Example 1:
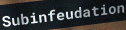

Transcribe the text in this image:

Subinfeudation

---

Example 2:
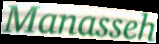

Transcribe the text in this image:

Manasseh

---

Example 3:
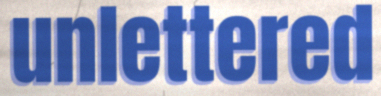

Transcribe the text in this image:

unlettered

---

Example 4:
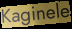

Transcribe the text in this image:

Kaginele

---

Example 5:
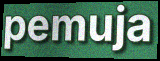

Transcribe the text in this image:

pemuja